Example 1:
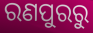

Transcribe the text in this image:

ରଣପୁରରୁ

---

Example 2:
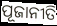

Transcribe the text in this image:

ପୂଜାନୀତି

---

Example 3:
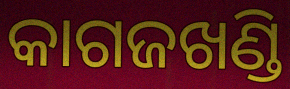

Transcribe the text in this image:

କାଗଜଖଣ୍ଡି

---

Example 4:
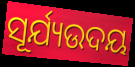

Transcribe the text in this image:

ସୂର୍ଯ୍ୟଉଦୟ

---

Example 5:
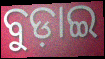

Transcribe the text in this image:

ବୁଡ଼ାଇ